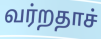
வர்றதாச்